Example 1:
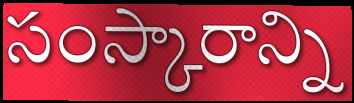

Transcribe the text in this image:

సంస్కారాన్ని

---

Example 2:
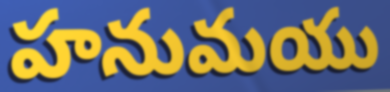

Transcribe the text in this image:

హనుమయు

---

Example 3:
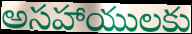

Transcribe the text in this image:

అసహాయులకు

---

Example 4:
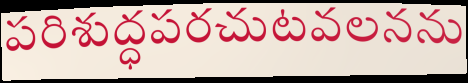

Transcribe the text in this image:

పరిశుద్ధపరచుటవలనను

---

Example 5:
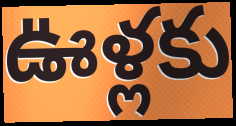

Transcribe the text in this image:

ఊళ్లకు